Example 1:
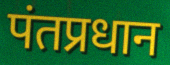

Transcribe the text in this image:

पंतप्रधान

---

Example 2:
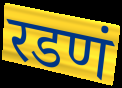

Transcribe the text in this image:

रडणं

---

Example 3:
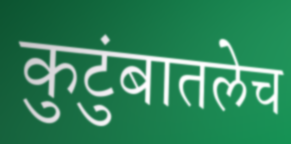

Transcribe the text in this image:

कुटुंबातलेच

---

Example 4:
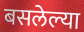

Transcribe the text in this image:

बसलेल्या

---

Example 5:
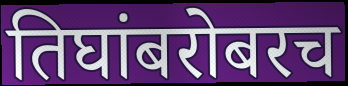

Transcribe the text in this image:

तिघांबरोबरच